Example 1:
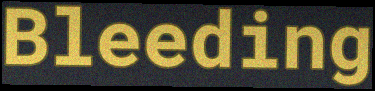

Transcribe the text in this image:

Bleeding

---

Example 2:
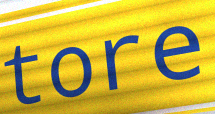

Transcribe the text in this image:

tore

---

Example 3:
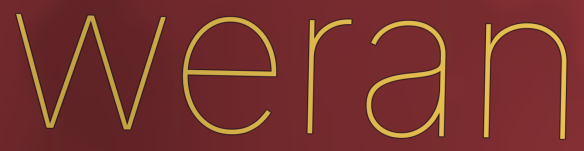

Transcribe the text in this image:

weran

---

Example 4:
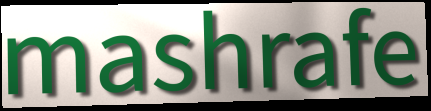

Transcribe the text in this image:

mashrafe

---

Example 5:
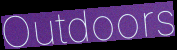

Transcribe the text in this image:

Outdoors